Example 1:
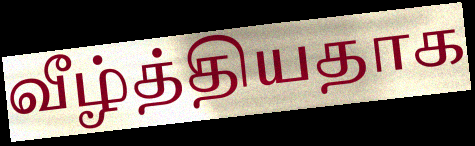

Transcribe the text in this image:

வீழ்த்தியதாக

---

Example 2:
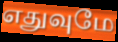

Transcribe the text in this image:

எதுவுமே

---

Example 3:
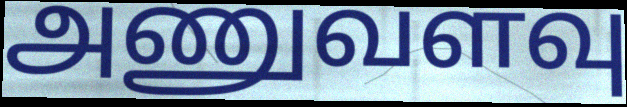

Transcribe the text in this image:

அணுவளவு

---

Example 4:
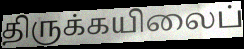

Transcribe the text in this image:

திருக்கயிலைப்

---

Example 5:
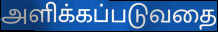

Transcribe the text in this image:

அளிக்கப்படுவதை